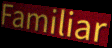
Familiar